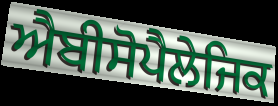
ਐਬੀਸੋਪੈਲੇਜਿਕ